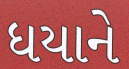
ધયાને